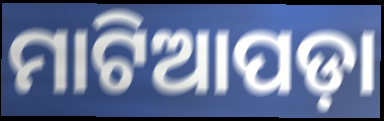
ମାଟିଆପଡ଼ା